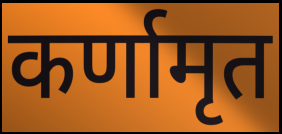
कर्णामृत